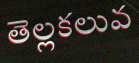
తెల్లకలువ